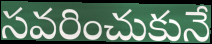
సవరించుకునే